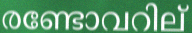
രണ്ടോവറില്